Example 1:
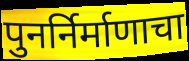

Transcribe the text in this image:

पुनर्निर्माणाचा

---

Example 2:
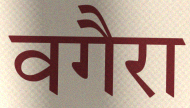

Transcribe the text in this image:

वगैरा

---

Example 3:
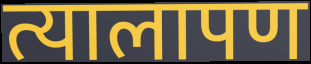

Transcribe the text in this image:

त्यालापण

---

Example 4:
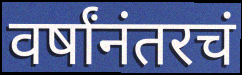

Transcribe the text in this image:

वर्षांनंतरचं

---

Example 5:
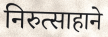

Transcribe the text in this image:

निरुत्साहाने